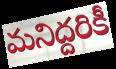
మనిద్దరికీ